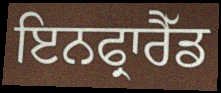
ਇਨਫ੍ਰਾਰੈੱਡ